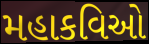
મહાકવિઓ